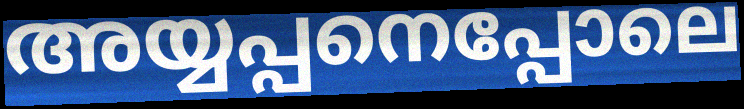
അയ്യപ്പനെപ്പോലെ